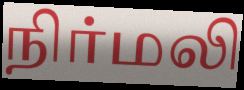
நிர்மலி